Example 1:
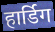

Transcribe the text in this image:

हार्डिग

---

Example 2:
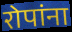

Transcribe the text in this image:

रोपांना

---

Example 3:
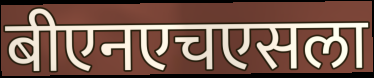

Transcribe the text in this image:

बीएनएचएसला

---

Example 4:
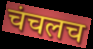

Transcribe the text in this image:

चंचलच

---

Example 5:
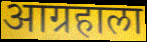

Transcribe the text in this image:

आग्रहाला